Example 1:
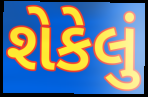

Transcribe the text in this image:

શેકેલું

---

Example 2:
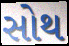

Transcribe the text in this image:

સોથ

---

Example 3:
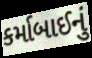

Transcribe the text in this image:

કર્માબાઈનું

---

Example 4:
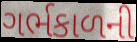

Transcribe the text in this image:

ગર્ભકાળની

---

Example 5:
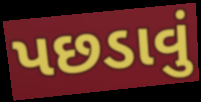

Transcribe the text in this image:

પછડાવું